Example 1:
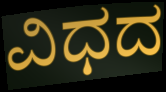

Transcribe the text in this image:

ವಿಧದ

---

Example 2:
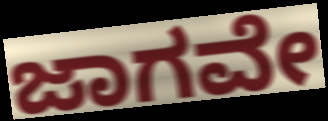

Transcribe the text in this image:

ಜಾಗವೇ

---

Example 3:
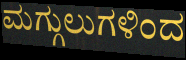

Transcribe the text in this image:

ಮಗ್ಗುಲುಗಳಿಂದ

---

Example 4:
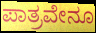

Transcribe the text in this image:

ಪಾತ್ರವೇನೂ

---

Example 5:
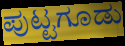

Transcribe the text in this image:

ಪುಟ್ಟಗೂಡು